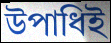
উপাধিই